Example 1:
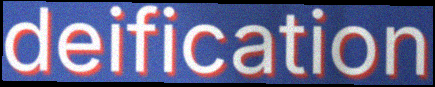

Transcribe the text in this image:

deification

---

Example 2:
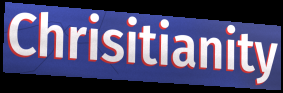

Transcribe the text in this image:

Chrisitianity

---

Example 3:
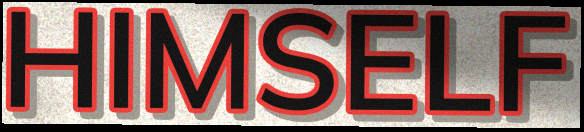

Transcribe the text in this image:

HIMSELF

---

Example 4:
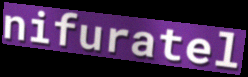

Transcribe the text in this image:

nifuratel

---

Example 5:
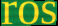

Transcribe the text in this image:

ros